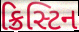
ક્રિસ્ટિન